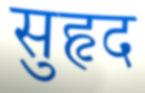
सुहृद